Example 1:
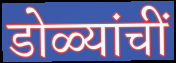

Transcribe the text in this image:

डोळ्यांचीं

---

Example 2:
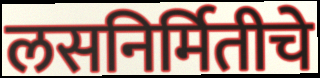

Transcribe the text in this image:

लसनिर्मितीचे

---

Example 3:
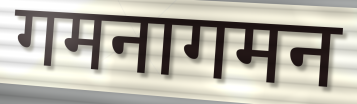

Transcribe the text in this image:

गमनागमन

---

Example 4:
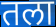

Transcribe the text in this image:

तला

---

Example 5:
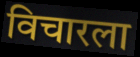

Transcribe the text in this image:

विचारला